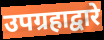
उपग्रहाद्वारे